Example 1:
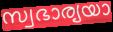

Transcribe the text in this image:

സ്വഭാര്യയാ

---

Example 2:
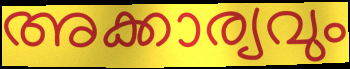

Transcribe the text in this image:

അക്കാര്യവും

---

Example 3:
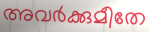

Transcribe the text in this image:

അവർക്കുമീതേ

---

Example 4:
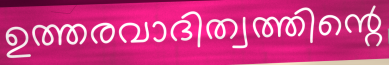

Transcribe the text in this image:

ഉത്തരവാദിത്വത്തിന്റെ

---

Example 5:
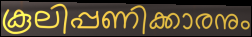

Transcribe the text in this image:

കൂലിപ്പണിക്കാരനും